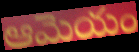
ఆమెయం